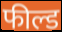
फील्‍ड